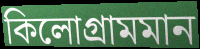
কিলোগ্ৰামমান